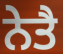
ਨੇਤੈ